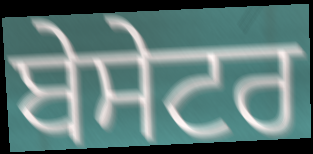
ਬੇਸੇਟਰ